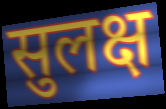
सुलक्ष